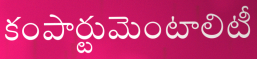
కంపార్టుమెంటాలిటీ